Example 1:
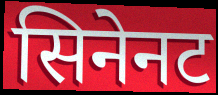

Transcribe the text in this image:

सिनेनट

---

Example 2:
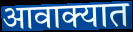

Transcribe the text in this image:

आवाक्‍यात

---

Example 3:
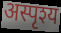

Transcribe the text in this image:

अस्पृश्य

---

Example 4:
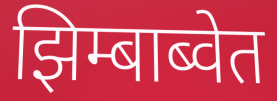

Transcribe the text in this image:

झिम्बाब्वेत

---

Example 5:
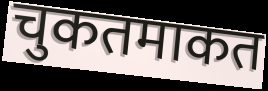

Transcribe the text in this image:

चुकतमाकत